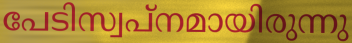
പേടിസ്വപ്നമായിരുന്നു